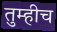
तुम्हीच